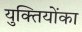
युक्तियोंका